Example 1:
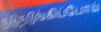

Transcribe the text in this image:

நடுநடுங்கிப்போய்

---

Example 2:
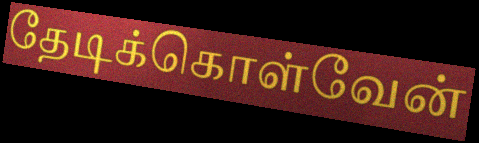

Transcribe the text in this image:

தேடிக்கொள்வேன்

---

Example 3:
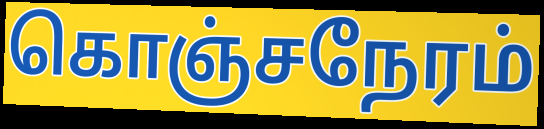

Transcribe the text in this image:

கொஞ்சநேரம்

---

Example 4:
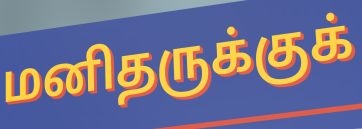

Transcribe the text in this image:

மனிதருக்குக்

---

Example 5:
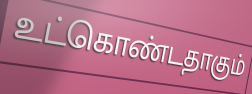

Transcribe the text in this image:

உட்கொண்டதாகும்